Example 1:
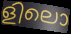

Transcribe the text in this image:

ളിലൊ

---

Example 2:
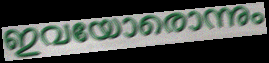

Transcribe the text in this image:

ഇവയോരൊന്നും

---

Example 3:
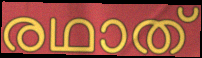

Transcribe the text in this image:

രഥാത്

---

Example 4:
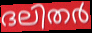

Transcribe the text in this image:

ദലിതർ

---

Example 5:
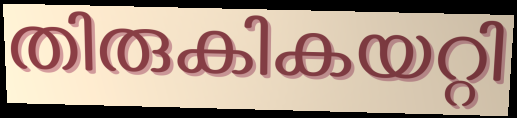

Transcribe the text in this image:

തിരുകികയറ്റി